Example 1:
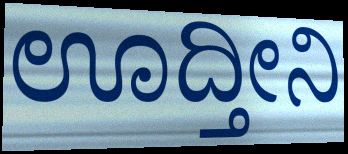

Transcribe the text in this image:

ಊದ್ತೀನಿ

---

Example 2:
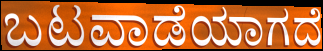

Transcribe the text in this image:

ಬಟವಾಡೆಯಾಗದೆ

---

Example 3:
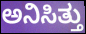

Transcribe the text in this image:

ಅನಿಸಿತ್ತು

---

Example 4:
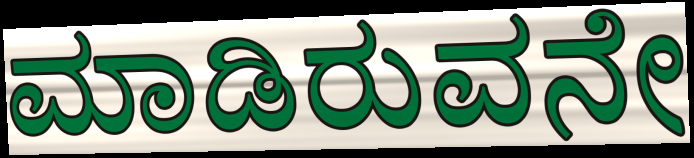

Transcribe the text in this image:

ಮಾಡಿರುವನೇ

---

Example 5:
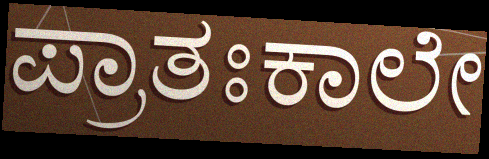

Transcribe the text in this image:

ಪ್ರಾತಃಕಾಲೇ